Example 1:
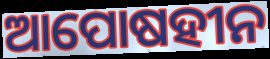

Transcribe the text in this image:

ଆପୋଷହୀନ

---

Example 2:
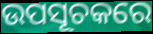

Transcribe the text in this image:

ଉପସୂଚକରେ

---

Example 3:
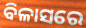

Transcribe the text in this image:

ବିଳାସରେ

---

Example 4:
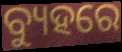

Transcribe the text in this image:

ବ୍ୟୁହରେ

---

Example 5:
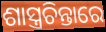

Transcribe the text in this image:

ଶାସ୍ତ୍ରଚିନ୍ତାରେ